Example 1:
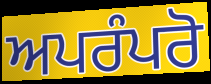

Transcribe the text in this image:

ਅਪਰੰਪਰੋ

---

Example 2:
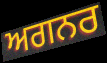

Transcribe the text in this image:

ਅਗਨਰ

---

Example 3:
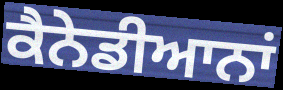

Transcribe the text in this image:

ਕੈਨੇਡੀਆਨਾਂ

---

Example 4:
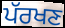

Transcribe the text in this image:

ਪੱਰਖਣ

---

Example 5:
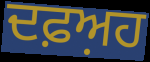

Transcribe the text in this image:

ਦਫ਼ਅ਼ਹ